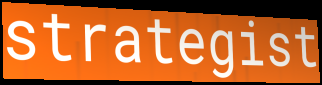
strategist